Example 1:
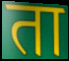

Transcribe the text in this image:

ता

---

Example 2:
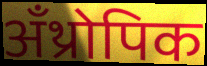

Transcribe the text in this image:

अँथ्रोपिक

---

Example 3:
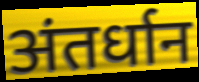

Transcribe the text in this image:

अंतर्धान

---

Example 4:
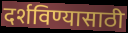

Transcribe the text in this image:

दर्शविण्यासाठी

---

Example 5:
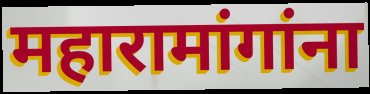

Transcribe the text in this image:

महारामांगांना